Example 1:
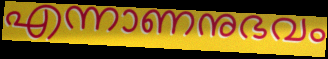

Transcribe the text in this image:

എന്നാണനുഭവം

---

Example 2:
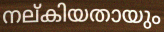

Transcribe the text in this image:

നല്കിയതായും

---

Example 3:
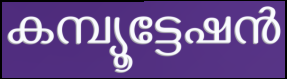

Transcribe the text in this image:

കമ്പ്യൂട്ടേഷൻ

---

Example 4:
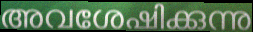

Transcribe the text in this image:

അവശേഷിക്കുന്നു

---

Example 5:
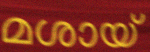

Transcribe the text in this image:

മശായ്